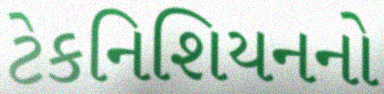
ટેકનિશિયનનો